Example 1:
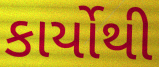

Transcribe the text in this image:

કાર્યોથી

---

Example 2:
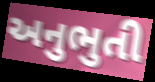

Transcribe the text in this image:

અનુભુતી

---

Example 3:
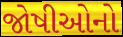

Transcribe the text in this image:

જોષીઓનો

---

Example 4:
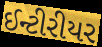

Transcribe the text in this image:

ઈન્ટીરીયર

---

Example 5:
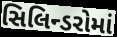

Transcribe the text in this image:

સિલિન્ડરોમાં